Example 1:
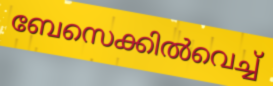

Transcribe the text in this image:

ബേസെക്കിൽവെച്ച്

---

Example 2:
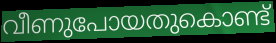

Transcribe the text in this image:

വീണുപോയതുകൊണ്ട്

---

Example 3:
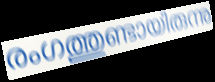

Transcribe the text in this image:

രംഗത്തുണ്ടായിരുന്നു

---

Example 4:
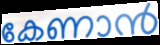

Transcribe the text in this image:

കേണാൻ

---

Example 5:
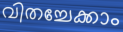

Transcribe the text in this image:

വിതച്ചേക്കാം